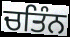
ਚਤਿੰਨ